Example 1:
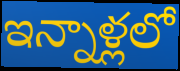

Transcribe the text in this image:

ఇన్నాళ్లలో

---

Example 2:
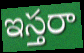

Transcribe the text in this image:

ఇస్తరా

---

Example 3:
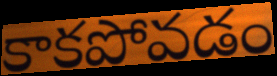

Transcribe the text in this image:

కాకపోవడం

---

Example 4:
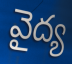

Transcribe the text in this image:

వైద్య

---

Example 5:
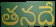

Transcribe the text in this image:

తనదే